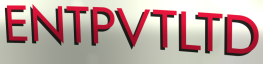
ENTPVTLTD